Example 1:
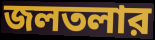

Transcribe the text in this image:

জলতলার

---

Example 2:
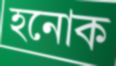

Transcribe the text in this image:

হনোক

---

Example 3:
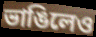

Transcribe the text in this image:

ভাঙিলেও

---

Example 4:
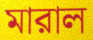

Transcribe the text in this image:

মারাল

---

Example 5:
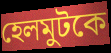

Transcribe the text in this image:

হেলমুটকে